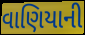
વાણિયાની